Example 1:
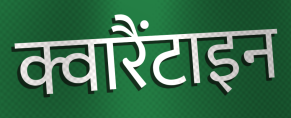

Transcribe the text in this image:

क्वारैंटाइन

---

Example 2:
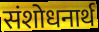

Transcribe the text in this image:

संशोधनार्थ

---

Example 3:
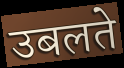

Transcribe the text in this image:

उबलते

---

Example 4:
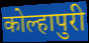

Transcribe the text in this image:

कोल्हापुरी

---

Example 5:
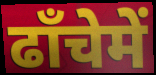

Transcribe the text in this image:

ढाँचेमें